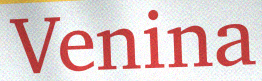
Venina